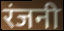
रंजनी